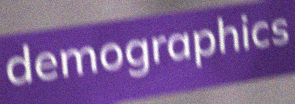
demographics